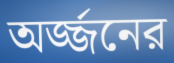
অর্জ্জনের